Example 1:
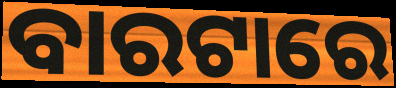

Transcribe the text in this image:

ବାରଟାରେ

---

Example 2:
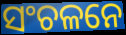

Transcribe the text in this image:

ସଂଚଳନେ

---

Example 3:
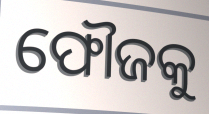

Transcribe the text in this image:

ଫୌଜକୁ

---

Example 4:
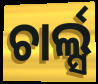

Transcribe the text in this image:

ଚାର୍ଲ୍ସ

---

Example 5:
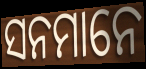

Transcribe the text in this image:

ସନମାନେ